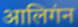
आलिगंन